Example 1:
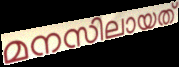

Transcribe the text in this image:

മനസിലായത്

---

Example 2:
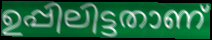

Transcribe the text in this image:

ഉപ്പിലിട്ടതാണ്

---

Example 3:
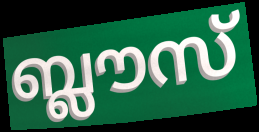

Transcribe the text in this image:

ബ്ലൗസ്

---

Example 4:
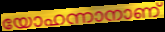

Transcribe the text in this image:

യോഹന്നാനാണ്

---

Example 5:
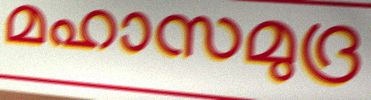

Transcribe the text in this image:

മഹാസമുദ്ര